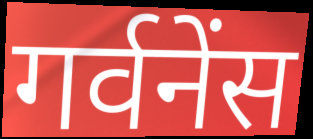
गर्वनेंस